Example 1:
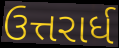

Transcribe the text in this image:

ઉત્તરાર્ધ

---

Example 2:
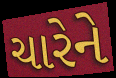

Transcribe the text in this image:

ચારેને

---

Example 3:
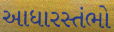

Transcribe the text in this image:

આધારસ્તંભો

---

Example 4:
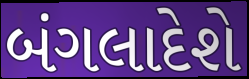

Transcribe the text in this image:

બંગલાદેશે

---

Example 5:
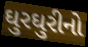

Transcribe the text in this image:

ઘુરઘુરીનો